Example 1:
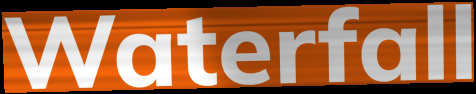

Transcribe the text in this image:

Waterfall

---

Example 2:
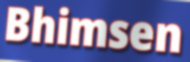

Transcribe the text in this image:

Bhimsen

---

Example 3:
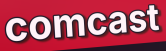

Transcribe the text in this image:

comcast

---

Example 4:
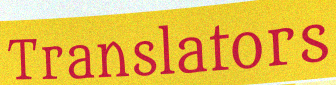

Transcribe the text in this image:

Translators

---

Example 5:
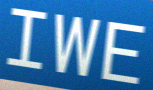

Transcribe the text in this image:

IWE